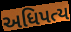
અધિપત્ય